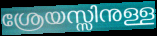
ശ്രേയസ്സിനുള്ള